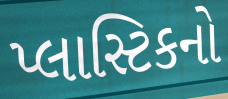
પ્લાસ્ટિકનો